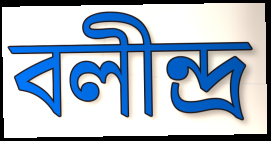
বলীন্দ্ৰ